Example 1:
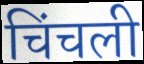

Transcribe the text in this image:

चिंचली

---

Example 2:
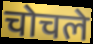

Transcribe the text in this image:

चोचले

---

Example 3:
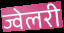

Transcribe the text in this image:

ज्वेलरी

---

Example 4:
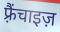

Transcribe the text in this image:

फ़्रैंचाइज़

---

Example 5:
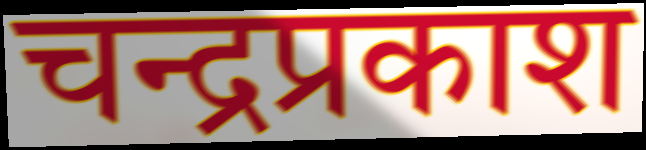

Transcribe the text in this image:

चन्द्रप्रकाश